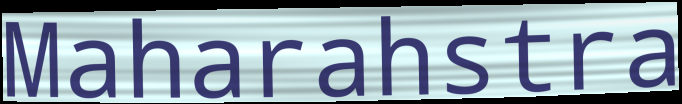
Maharahstra